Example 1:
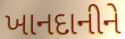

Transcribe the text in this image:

ખાનદાનીને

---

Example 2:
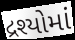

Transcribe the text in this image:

દ્રશ્યોમાં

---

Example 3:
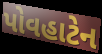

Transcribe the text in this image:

પોવહાટેન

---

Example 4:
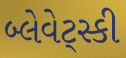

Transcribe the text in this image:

બ્લેવેટ્સ્કી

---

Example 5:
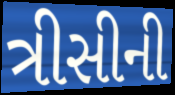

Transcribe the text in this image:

ત્રીસીની